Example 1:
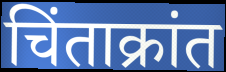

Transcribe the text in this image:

चिंताक्रांत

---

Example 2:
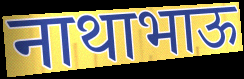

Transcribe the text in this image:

नाथाभाऊ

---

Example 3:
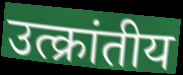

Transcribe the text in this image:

उत्क्रांतीय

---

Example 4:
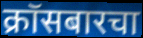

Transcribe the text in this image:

क्रॉसबारचा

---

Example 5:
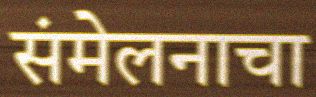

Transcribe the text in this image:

संमेलनाचा